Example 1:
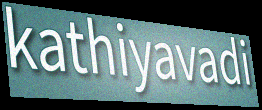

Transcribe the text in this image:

kathiyavadi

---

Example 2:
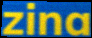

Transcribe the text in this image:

zina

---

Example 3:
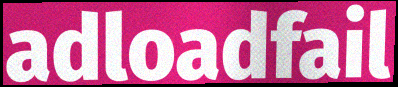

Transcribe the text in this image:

adloadfail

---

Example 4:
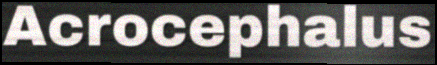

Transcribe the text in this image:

Acrocephalus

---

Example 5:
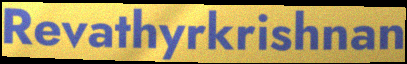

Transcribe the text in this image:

Revathyrkrishnan